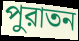
পুরাতন